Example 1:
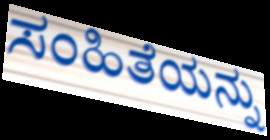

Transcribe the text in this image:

ಸಂಹಿತೆಯನ್ನು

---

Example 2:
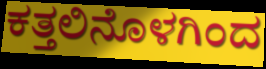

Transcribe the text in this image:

ಕತ್ತಲಿನೊಳಗಿಂದ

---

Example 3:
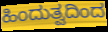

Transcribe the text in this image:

ಹಿಂದುತ್ವದಿಂದ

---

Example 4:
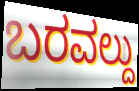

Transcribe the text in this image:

ಬರವಲ್ದು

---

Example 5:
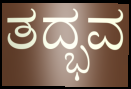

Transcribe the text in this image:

ತದ್ಭವ